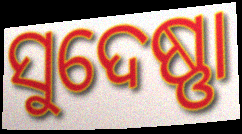
ସୁଦେଷ୍ଣା